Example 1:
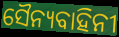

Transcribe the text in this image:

ସୈନ୍ଯବାହିନୀ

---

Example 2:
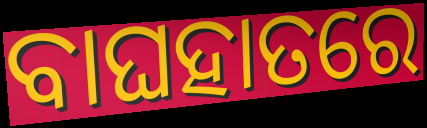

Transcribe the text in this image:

ବାଘହାତରେ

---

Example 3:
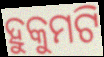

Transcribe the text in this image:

ହୁକୁମଟି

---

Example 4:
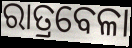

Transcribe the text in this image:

ରାତ୍ରବେଳା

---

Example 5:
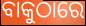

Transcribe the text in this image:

ବାକୁଠାରେ